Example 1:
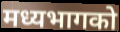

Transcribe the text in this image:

मध्यभागको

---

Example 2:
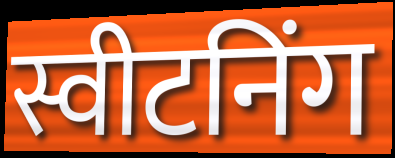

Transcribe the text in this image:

स्वीटनिंग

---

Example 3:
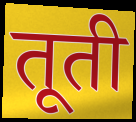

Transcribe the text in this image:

तूती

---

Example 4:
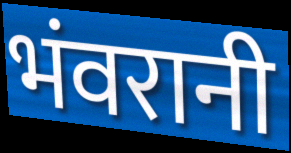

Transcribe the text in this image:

भंवरानी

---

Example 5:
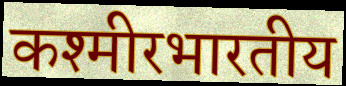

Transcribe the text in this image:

कश्मीरभारतीय